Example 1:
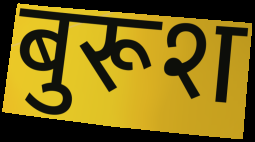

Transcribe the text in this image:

बुरूश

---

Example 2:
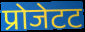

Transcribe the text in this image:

प्रोजेटट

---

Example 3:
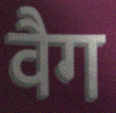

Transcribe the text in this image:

वैग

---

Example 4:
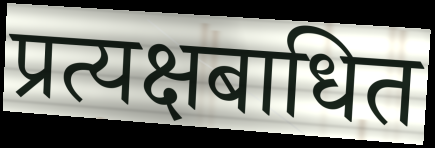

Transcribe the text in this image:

प्रत्यक्षबाधित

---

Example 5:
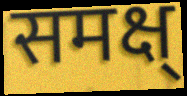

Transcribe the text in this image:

समक्ष्